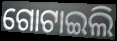
ଗୋଟାଇଲି